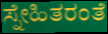
ಸ್ನೇಹಿತರಂತೆ